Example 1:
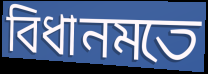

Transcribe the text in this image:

বিধানমতে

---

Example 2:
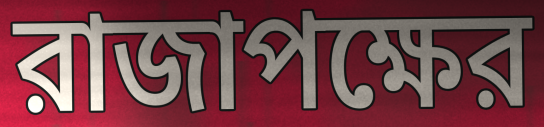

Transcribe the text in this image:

রাজাপক্ষের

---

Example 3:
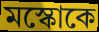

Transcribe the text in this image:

মস্কোকে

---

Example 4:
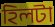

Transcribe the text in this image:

হিলটা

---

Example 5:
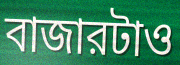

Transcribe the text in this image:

বাজারটাও